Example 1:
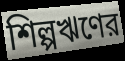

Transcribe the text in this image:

শিল্পঋণের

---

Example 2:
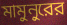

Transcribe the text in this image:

মামুনুরের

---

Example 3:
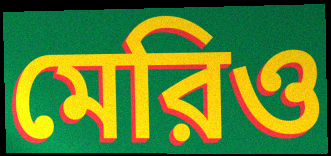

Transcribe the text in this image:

মেরিও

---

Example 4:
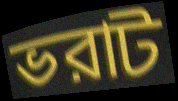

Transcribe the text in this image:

ভরাট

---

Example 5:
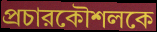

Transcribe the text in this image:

প্রচারকৌশলকে